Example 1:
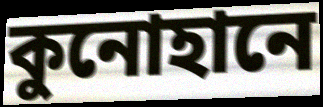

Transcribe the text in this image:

কুনোহানে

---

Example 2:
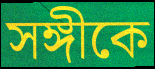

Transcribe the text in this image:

সঙ্গীকে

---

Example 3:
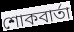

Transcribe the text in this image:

শোকবার্তা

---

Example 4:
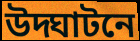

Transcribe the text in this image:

উদ্ঘাটনে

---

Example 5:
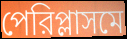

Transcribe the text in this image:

পেরিপ্লাসমে